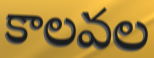
కాలవల